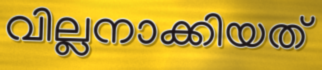
വില്ലനാക്കിയത്